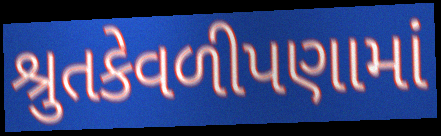
શ્રુતકેવળીપણામાં